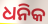
ଧନିକ